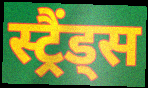
स्ट्रैंड्स